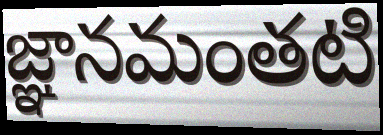
జ్ఞానమంతటి